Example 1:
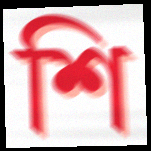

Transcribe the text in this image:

শি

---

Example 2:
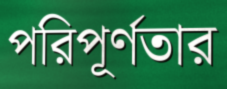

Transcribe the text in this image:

পরিপূর্ণতার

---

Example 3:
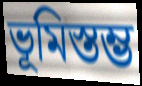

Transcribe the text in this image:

ভূমিস্তম্ভ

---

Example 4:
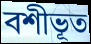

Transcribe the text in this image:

বশীভূত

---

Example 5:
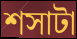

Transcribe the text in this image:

শসাটা